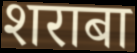
शराबा